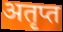
अतृप्त